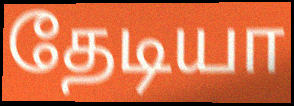
தேடியா